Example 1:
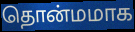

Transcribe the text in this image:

தொன்மமாக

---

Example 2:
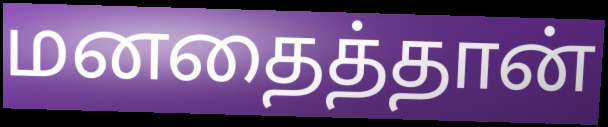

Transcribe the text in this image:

மனதைத்தான்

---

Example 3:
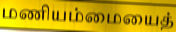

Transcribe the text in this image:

மணியம்மையைத்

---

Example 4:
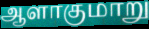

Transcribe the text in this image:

ஆளாகுமாறு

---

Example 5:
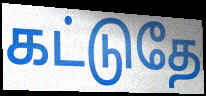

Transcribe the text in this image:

கட்டுதே